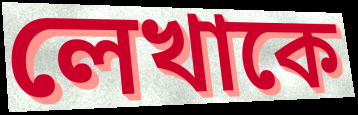
লেখাকে